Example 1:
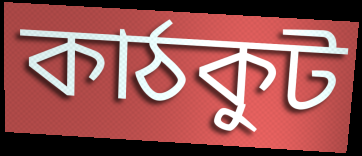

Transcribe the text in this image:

কাঠকুট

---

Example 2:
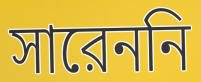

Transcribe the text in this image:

সারেননি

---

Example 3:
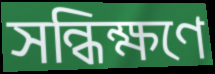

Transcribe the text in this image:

সন্ধিক্ষণে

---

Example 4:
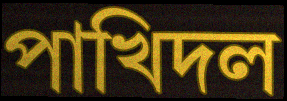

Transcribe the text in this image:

পাখিদল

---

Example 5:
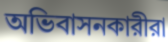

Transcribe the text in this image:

অভিবাসনকারীরা